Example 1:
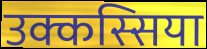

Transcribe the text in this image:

उक्कस्सिया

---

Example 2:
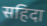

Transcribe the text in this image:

सहिदा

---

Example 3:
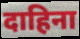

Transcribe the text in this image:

दाहिना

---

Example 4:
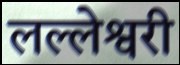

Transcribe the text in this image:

लल्लेश्वरी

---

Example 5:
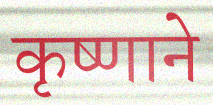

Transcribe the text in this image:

कृष्णाने